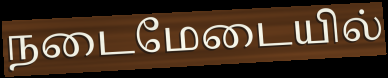
நடைமேடையில்